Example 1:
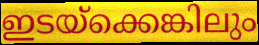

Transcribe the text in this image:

ഇടയ്ക്കെങ്കിലും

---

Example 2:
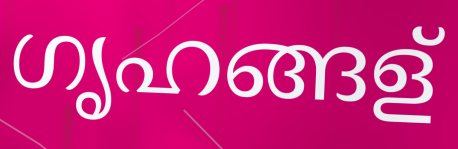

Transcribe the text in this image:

ഗൃഹങ്ങള്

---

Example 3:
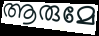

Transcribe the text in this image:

ആരുമേ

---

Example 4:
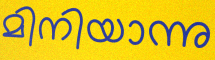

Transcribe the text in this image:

മിനിയാന്നു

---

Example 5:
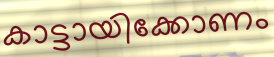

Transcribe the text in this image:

കാട്ടായിക്കോണം